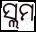
ସ୍ଲମ